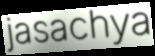
jasachya